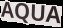
AQUA